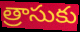
త్రాసుకు